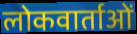
लोकवार्ताओं